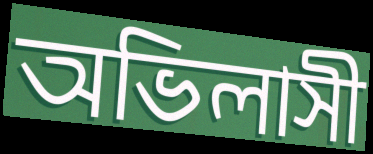
অভিলাসী